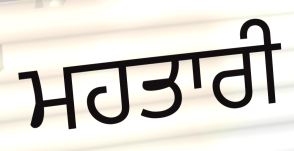
ਮਹਤਾਰੀ